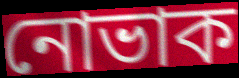
নোভাক